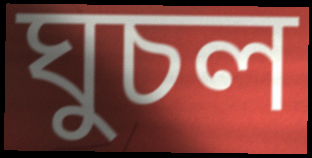
ঘুচল